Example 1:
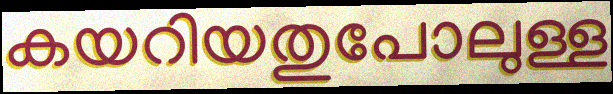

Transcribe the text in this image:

കയറിയതുപോലുള്ള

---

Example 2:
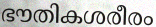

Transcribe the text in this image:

ഭൗതികശരീരം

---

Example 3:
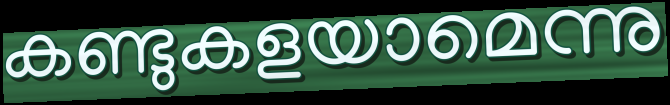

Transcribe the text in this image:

കണ്ടുകളയാമെന്നു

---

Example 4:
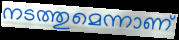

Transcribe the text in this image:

നടത്തുമെന്നാണ്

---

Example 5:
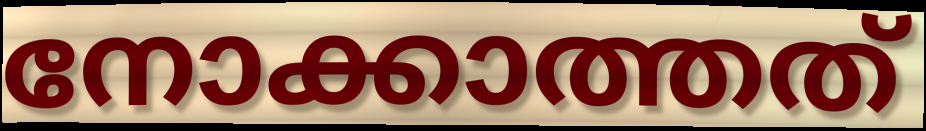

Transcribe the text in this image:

നോക്കാത്തത്